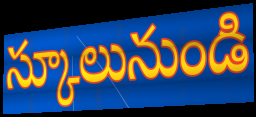
స్కూలునుండి